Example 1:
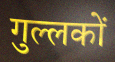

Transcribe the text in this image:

गुल्लकों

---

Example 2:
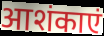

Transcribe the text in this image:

आशंकाएं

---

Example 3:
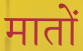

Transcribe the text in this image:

मातों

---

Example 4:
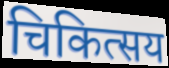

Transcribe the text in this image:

चिकित्सय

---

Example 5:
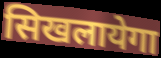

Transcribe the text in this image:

सिखलायेगा